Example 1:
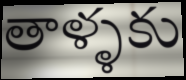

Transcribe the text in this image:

తాళ్ళకు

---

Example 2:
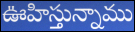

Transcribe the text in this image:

ఊహిస్తున్నాము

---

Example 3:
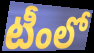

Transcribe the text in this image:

టీంలో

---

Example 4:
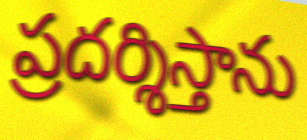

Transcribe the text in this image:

ప్రదర్శిస్తాను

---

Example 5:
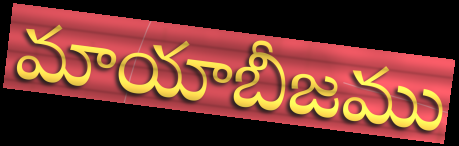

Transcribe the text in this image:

మాయాబీజము